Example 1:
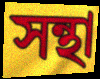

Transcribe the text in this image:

সন্থা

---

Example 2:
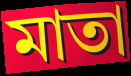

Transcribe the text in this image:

মাতা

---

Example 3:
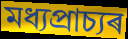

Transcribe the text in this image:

মধ্যপ্ৰাচ্যৰ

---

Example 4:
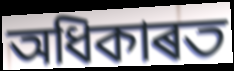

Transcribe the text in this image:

অধিকাৰত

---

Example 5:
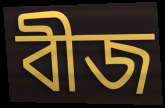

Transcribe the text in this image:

বীজ